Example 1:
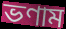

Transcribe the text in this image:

ভণাম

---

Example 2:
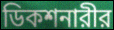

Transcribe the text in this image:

ডিকশনারীর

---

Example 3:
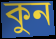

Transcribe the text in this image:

কুন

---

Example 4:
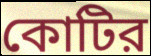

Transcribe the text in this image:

কোটির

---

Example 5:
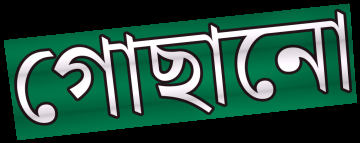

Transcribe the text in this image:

গোছানো